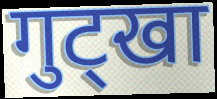
गुट्खा